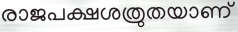
രാജപക്ഷശത്രുതയാണ്